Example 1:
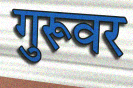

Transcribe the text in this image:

गुरूवर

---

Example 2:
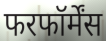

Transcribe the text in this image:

फरफॉर्मेंस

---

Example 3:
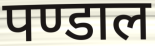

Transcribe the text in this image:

पण्डाल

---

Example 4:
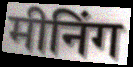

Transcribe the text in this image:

मीनिंग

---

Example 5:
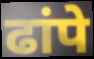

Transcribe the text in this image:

ढांपे